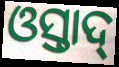
ଓସ୍ତାଦ୍